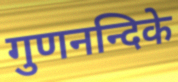
गुणनन्दिके